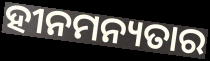
ହୀନମନ୍ୟତାର